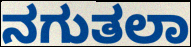
ನಗುತಲಾ